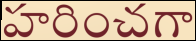
హరించగా